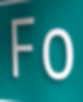
Fo